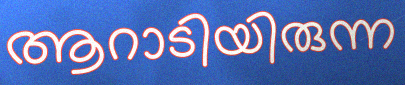
ആറാടിയിരുന്ന